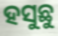
ହସୁଛୁ